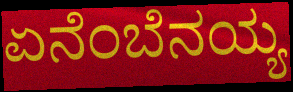
ಏನೆಂಬೆನಯ್ಯ